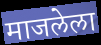
माजलेला